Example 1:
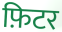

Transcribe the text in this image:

फ़िटर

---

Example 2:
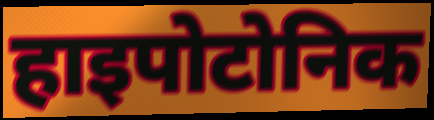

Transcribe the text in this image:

हाइपोटोनिक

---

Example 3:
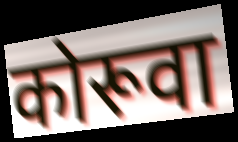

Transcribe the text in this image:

कोरूवा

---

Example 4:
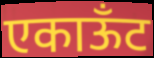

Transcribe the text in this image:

एकाऊँट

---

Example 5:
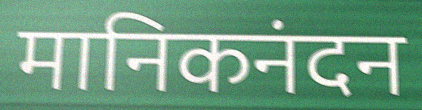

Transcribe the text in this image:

मानिकनंदन